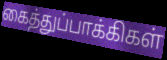
கைத்துப்பாக்கிகள்